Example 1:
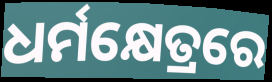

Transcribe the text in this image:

ଧର୍ମକ୍ଷେତ୍ରରେ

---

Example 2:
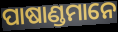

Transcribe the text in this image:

ପାଷାଣ୍ଡମାନେ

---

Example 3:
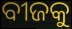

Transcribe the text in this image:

ବୀଜକୁ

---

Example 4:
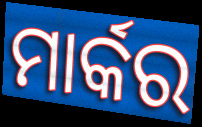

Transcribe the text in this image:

ମାର୍କର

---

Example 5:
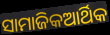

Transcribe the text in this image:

ସାମାଜିକଆର୍ଥିକ